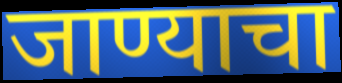
जाण्‍याचा